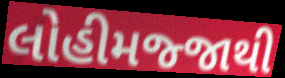
લોહીમજ્જાથી